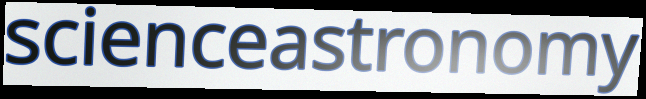
scienceastronomy